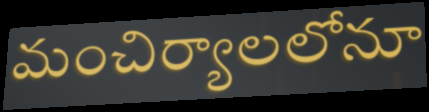
మంచిర్యాలలోనూ